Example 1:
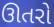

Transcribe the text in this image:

ઊતરો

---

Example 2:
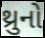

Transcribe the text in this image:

થ્રુનો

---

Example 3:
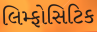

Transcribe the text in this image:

લિમ્ફોસિટિક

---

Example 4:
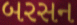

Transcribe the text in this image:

બરસન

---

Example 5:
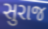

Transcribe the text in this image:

સુરાજ